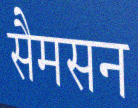
सैमसन